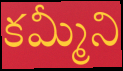
కమ్మీని